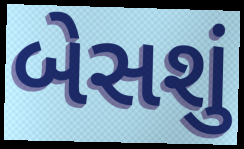
બેસશું